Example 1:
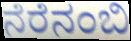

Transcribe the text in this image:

ನೆರೆನಂಬಿ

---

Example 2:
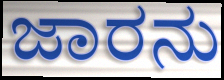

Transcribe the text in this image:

ಜಾರನು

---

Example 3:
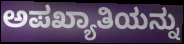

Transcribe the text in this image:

ಅಪಖ್ಯಾತಿಯನ್ನು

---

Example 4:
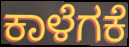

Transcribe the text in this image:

ಕಾಳೆಗಕೆ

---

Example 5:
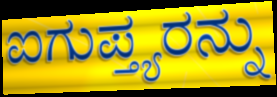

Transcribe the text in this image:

ಐಗುಪ್ತ್ಯರನ್ನು